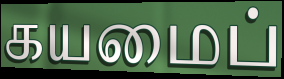
கயமைப்